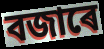
বজাৰে